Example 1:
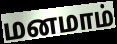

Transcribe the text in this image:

மனமாம்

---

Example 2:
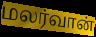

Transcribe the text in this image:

மலர்வான்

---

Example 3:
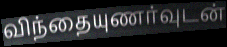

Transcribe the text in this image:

விந்தையுணர்வுடன்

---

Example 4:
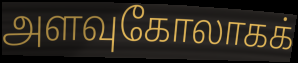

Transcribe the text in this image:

அளவுகோலாகக்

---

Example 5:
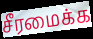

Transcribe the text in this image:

சீரமைக்க